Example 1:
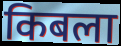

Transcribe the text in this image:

किबला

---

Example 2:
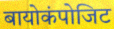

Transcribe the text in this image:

बायोकंपोजिट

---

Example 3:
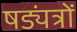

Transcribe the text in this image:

षड्यंत्रों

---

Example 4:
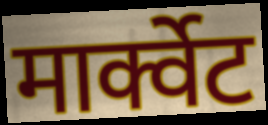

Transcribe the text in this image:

मार्क्वेट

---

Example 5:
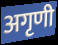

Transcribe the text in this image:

अगृणी